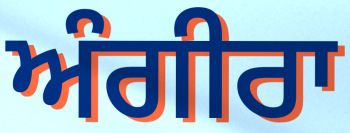
ਅੰਗੀਰਾ